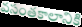
వసంతకాలానికి